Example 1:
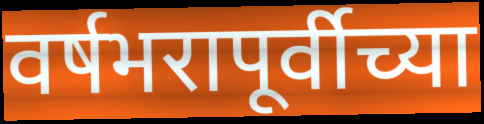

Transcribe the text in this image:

वर्षभरापूर्वीच्या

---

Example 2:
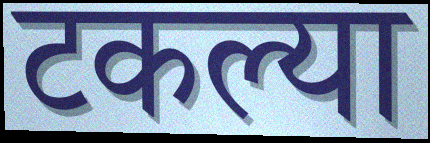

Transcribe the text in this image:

टकल्या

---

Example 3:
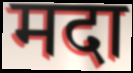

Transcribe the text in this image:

मदा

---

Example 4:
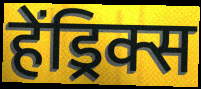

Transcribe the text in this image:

हेंड्रिक्स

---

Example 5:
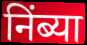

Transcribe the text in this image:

निंब्या